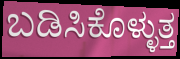
ಬಡಿಸಿಕೊಳ್ಳುತ್ತ